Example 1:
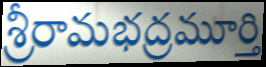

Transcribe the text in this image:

శ్రీరామభద్రమూర్తి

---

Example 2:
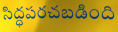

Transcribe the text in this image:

సిద్ధపరచబడింది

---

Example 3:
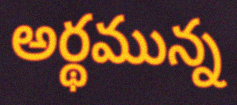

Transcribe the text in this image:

అర్థమున్న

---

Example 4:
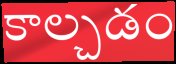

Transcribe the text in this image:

కాల్చడం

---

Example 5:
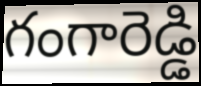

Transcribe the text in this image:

గంగారెడ్డి